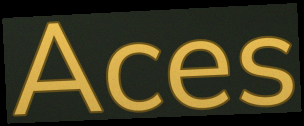
Aces